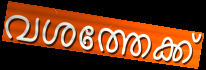
വശത്തേക്ക്